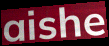
aishe